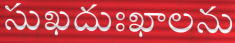
సుఖదుఃఖాలను